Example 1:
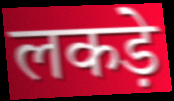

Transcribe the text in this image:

लकड़े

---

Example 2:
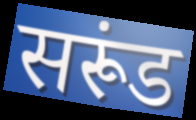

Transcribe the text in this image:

सरूंड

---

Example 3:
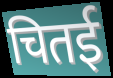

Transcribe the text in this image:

चितई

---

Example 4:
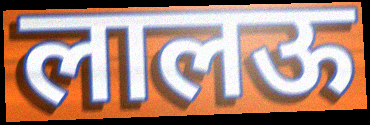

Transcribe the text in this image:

लालऊ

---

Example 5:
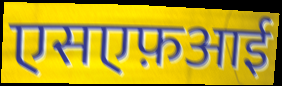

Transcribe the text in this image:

एसएफ़आई